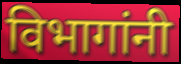
विभागांनी